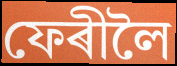
ফেৰীলৈ